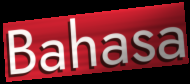
Bahasa